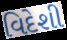
વિદેશી